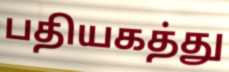
பதியகத்து